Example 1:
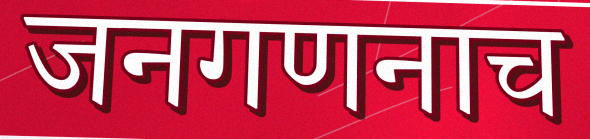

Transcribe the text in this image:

जनगणनाच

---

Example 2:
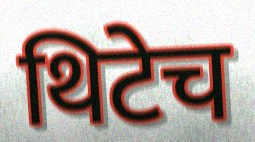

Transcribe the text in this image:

थिटेच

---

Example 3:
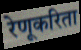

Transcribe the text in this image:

रेणूकरिता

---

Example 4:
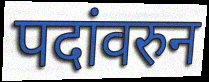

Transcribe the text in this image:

पदांवरुन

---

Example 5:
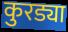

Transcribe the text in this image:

कुरड्या